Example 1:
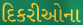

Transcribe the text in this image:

દિકરીઓના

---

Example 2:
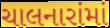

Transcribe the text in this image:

ચાલનારાંમાં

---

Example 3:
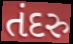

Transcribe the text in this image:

તંદરુ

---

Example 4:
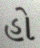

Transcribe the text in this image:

હો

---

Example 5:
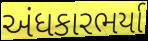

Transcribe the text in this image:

અંધકારભર્યા